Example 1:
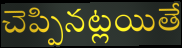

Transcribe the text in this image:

చెప్పినట్లయితే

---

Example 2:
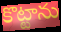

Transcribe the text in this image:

కొట్టాను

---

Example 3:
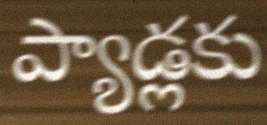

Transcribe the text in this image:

ప్యాడ్లకు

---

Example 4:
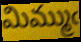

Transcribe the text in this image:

మిమ్ముఁ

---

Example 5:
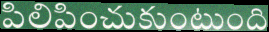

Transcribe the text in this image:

పిలిపించుకుంటుంది